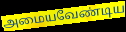
அமையவேண்டிய